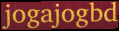
jogajogbd